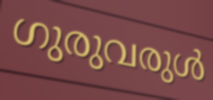
ഗുരുവരുൾ